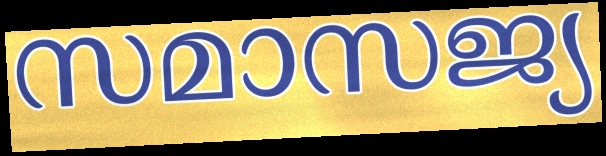
സമാസജ്യ